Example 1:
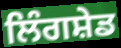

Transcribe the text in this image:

ਲਿੰਗਸ਼ੇਡ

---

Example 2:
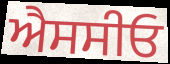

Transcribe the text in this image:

ਐਸਸੀਓ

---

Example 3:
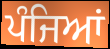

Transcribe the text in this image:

ਪੰਜਿਆਂ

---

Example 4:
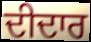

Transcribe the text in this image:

ਦੀਦਾਰ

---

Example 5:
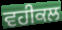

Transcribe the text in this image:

ਵਹੀਕਲ